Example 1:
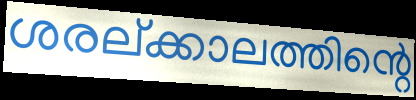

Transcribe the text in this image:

ശരല്ക്കാലത്തിന്റെ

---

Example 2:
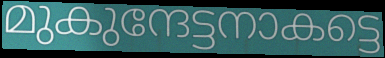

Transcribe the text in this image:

മുകുന്ദേട്ടനാകട്ടെ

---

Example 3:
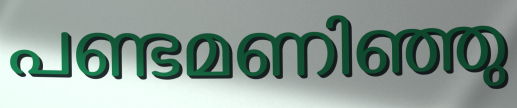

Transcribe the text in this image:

പണ്ടമണിഞ്ഞു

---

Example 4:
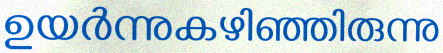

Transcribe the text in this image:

ഉയർന്നുകഴിഞ്ഞിരുന്നു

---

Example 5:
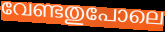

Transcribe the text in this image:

വേണ്ടതുപോലെ